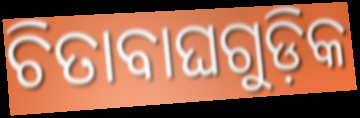
ଚିତାବାଘଗୁଡ଼ିକ